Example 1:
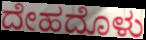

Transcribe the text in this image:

ದೇಹದೊಳು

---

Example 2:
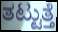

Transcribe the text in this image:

ತಟ್ಟುತ್ತೆ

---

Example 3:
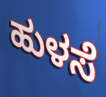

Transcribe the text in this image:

ಹುಳಸೆ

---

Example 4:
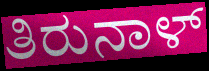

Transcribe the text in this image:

ತಿರುನಾಳ್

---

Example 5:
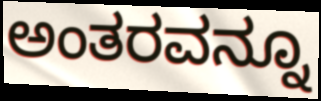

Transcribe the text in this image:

ಅಂತರವನ್ನೂ